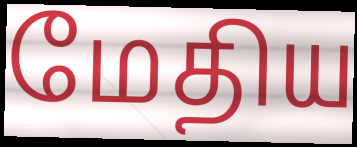
மேதிய